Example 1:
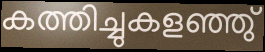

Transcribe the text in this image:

കത്തിച്ചുകളഞ്ഞു്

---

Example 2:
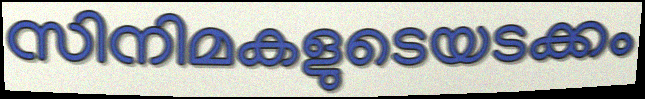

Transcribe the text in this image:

സിനിമകളുടെയടക്കം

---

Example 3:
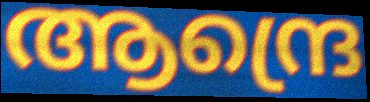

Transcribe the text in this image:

ആന്ദ്രെ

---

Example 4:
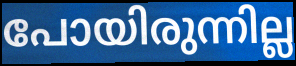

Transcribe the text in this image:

പോയിരുന്നില്ല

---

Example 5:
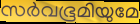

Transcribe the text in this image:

സർവഭൂമിയുമേ